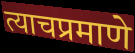
त्याचप्रमाणे